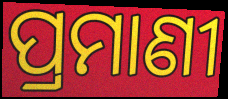
ପ୍ରମାଣୀ